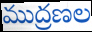
ముద్రణల